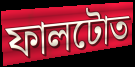
ফালটোত